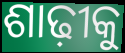
ଶାଢ଼ୀକୁ